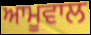
ਆਮੂਵਾਲ